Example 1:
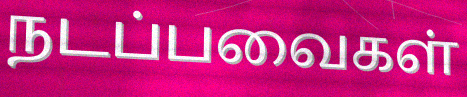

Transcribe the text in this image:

நடப்பவைகள்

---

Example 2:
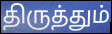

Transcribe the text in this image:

திருத்தும்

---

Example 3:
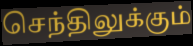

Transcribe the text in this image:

செந்திலுக்கும்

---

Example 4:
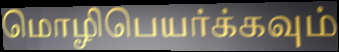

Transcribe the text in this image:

மொழிபெயர்க்கவும்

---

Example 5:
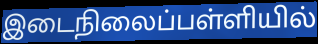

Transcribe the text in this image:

இடைநிலைப்பள்ளியில்